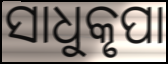
ସାଧୁକୃପା